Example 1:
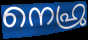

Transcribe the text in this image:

നെഹ്രു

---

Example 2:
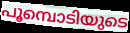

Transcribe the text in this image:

പൂമ്പൊടിയുടെ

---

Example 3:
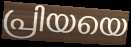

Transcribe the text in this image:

പ്രിയയെ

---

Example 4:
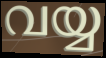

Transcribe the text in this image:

വയ്യ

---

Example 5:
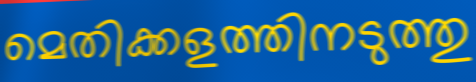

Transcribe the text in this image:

മെതിക്കളത്തിനടുത്തു